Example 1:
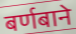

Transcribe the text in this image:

बर्णबाने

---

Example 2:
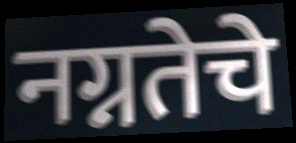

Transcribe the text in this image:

नग्नतेचे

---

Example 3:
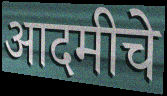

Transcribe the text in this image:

आदमीचे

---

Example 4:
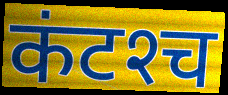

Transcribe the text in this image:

कंटश्च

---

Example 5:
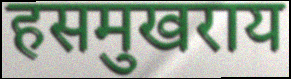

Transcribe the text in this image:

हसमुखराय